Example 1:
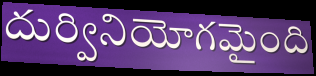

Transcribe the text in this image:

దుర్వినియోగమైంది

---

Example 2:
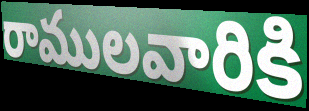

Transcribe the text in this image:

రాములవారికి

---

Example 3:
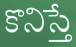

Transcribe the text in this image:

కొనిస్తే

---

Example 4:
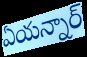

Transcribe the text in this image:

ఏయన్నార్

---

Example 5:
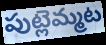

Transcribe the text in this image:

పుట్లెమ్మట